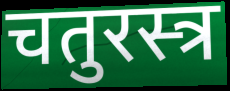
चतुरस्त्र